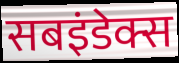
सबइंडेक्स